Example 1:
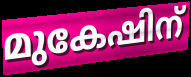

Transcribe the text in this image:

മുകേഷിന്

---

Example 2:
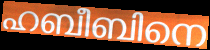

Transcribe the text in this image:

ഹബീബിനെ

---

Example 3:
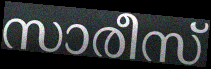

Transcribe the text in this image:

സാരീസ്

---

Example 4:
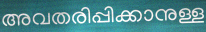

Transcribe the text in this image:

അവതരിപ്പിക്കാനുള്ള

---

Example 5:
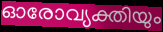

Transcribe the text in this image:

ഓരോവ്യക്തിയും